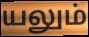
யலும்